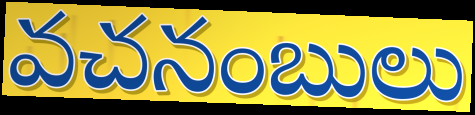
వచనంబులు